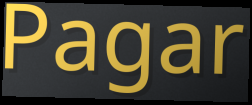
Pagar